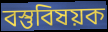
বস্তুবিষয়ক